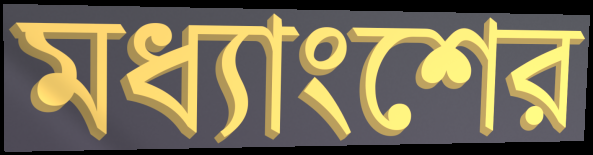
মধ্যাংশের